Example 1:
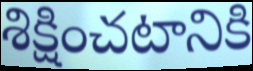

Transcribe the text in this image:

శిక్షించటానికి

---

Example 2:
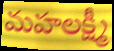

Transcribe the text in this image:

మహలక్ష్మీ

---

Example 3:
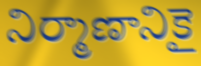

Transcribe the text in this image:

నిర్మాణానికై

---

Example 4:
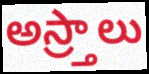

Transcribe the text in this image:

అస్ర్తాలు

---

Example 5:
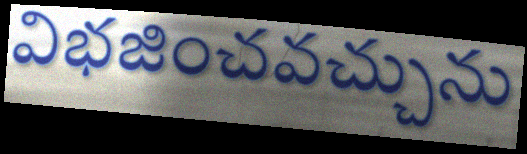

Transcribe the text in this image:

విభజించవచ్చును